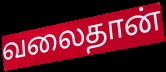
வலைதான்